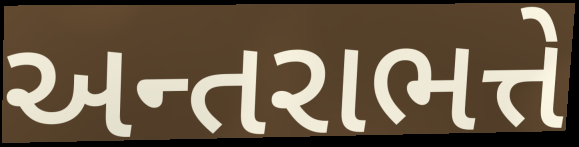
અન્તરાભત્તે